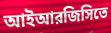
আইআরজিসিতে